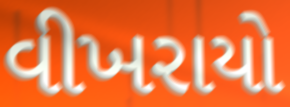
વીખરાયો